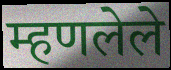
म्हणलेले